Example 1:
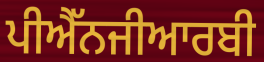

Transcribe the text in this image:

ਪੀਐੱਨਜੀਆਰਬੀ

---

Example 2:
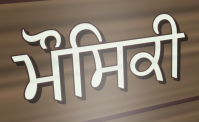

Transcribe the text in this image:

ਮੌਸਿਕੀ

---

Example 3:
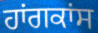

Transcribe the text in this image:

ਹਾਂਗਕਾਂਸ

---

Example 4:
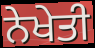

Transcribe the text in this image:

ਨੇਖੇਤੀ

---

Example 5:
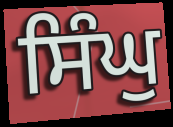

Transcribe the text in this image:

ਸਿੰਘੁ